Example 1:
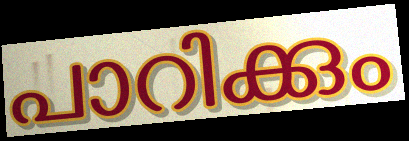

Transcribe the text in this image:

പാറിക്കും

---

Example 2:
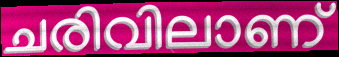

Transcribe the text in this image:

ചരിവിലാണ്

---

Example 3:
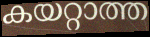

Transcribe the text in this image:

കയറ്റാത്ത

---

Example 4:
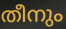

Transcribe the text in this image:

തീനും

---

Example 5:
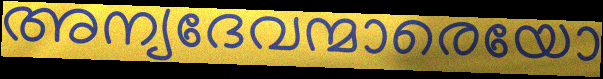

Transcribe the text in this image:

അന്യദേവന്മാരെയോ